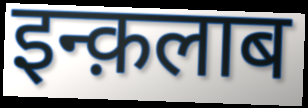
इन्क़लाब